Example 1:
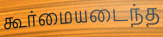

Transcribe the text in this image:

கூர்மையடைந்த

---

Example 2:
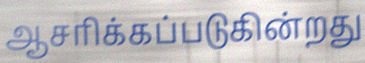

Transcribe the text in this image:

ஆசரிக்கப்படுகின்றது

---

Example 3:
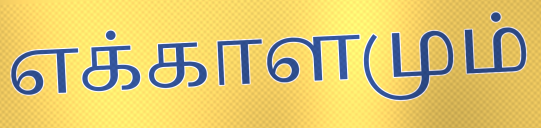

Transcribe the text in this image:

எக்காளமும்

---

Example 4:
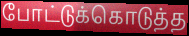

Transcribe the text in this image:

போட்டுக்கொடுத்த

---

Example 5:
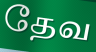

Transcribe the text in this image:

தேவ